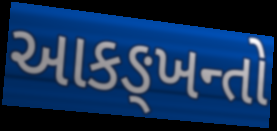
આકઙ્ખન્તો